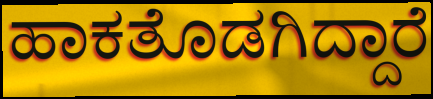
ಹಾಕತೊಡಗಿದ್ದಾರೆ